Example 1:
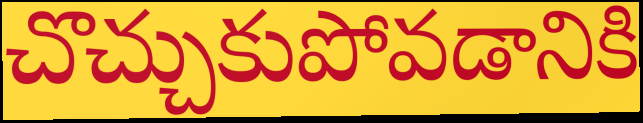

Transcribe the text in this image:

చొచ్చుకుపోవడానికి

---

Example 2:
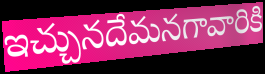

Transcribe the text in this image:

ఇచ్చునదేమనగావారికి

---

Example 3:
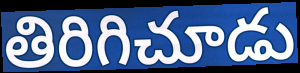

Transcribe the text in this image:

తిరిగిచూడు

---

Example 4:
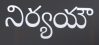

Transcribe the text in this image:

నిర్యయౌ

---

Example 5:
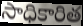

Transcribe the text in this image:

సాధికారిత